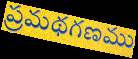
ప్రమథగణము